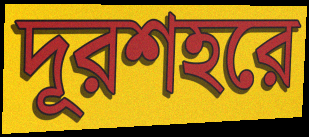
দূরশহরে